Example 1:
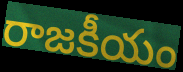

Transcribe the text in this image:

రాజకీయం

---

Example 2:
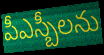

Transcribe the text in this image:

పీఎస్బీలను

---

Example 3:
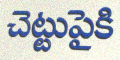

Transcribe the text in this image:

చెట్టుపైకి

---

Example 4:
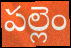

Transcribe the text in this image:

పల్లెం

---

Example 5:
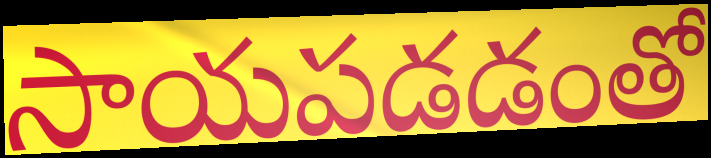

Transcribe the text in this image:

సాయపడడంతో